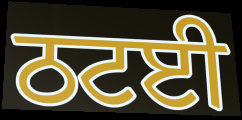
ਠਟਈ